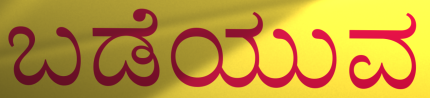
ಬಡೆಯುವ